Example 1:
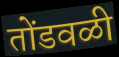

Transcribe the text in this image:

तोंडवळी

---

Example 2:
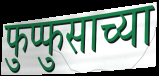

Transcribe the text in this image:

फुप्फुसाच्या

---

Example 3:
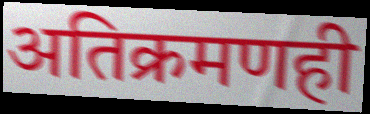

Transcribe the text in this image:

अतिक्रमणही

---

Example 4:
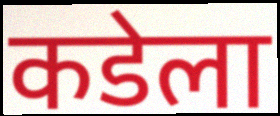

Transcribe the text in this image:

कडेला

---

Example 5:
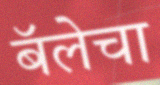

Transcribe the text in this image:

बॅलेचा